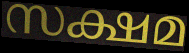
സക്ഷമ